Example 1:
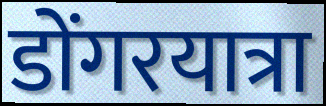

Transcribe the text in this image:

डोंगरयात्रा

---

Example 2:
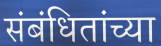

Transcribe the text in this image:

संबंधितांच्या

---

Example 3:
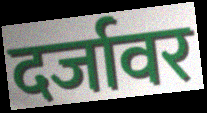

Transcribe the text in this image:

दर्जावर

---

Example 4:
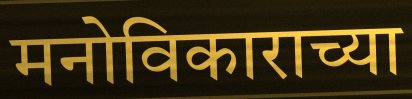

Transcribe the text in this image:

मनोविकाराच्या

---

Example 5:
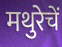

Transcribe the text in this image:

मथुरेचें